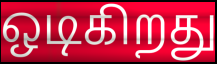
ஒடிகிறது